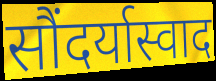
सौंदर्यास्वाद